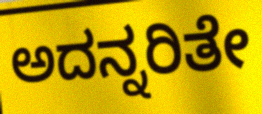
ಅದನ್ನರಿತೇ